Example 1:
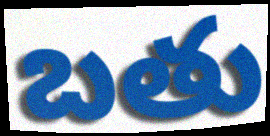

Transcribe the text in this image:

బతు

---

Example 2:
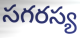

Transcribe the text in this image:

సగరస్య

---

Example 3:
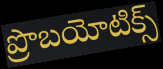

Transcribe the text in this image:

ప్రొబయోటిక్స్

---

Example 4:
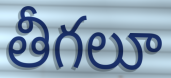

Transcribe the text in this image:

తీగలూ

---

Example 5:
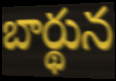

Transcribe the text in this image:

బార్థున